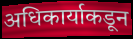
अधिकार्याकडून